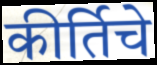
कीर्तिचे